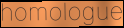
homologue